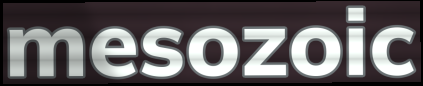
mesozoic